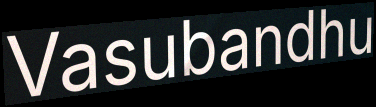
Vasubandhu